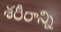
శరీరాన్ని